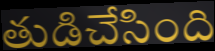
తుడిచేసింది